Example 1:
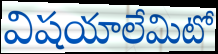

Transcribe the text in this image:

విషయాలేమిటో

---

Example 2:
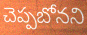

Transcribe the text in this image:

చెప్పబోనని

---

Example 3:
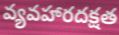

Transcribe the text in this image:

వ్యవహారదక్షత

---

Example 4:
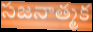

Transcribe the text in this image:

సజనాత్మక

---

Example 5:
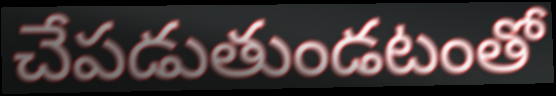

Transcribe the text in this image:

చేపడుతుండటంతో